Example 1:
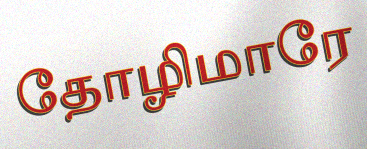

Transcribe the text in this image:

தோழிமாரே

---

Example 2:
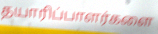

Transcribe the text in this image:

தயாரிப்பாளர்களை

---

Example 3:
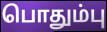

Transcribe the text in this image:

பொதும்பு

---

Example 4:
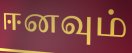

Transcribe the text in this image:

ஈனவும்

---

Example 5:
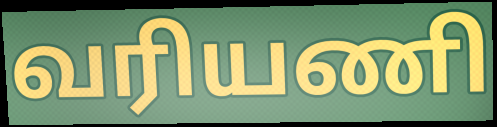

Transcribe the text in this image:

வரியணி